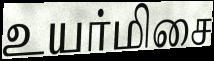
உயர்மிசை